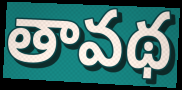
తావథ